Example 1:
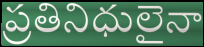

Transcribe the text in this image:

ప్రతినిధులైనా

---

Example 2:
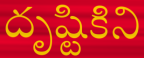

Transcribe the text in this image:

దృష్టికిని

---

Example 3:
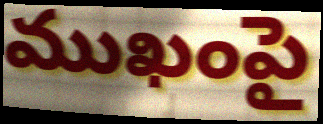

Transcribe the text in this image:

ముఖంపై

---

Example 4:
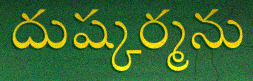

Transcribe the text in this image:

దుష్కర్మను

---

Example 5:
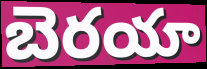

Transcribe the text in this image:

బెరయా